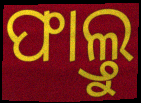
ଫାଲ୍ତୁ